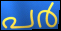
പർ